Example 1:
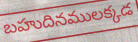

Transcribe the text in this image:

బహుదినములక్కడ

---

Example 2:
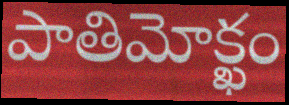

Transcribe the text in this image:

పాతిమోక్ఖం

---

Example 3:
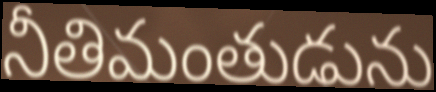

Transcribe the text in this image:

నీతిమంతుడును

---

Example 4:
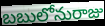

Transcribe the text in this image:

బబులోనురాజు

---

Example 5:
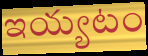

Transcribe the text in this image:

ఇయ్యటం